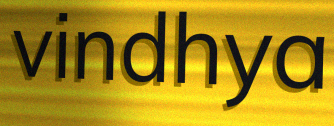
vindhya